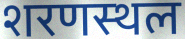
शरणस्थल